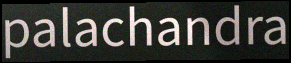
palachandra